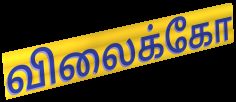
விலைக்கோ